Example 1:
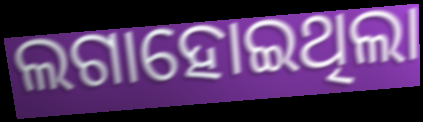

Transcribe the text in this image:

ଲଗାହୋଇଥିଲା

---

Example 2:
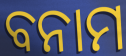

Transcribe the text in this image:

ବନାମ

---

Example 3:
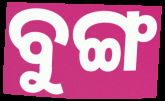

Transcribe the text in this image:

ବୁଙ୍ଗ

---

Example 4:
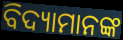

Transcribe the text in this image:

ବିଦ୍ୟାମାନଙ୍କ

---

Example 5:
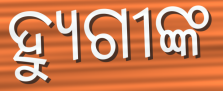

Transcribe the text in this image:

ହ୍ୟୁଗୀଙ୍କ